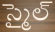
స్మైల్